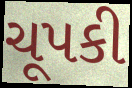
ચૂપકી